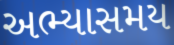
અભ્યાસમય